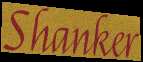
Shanker